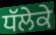
ਧੱਲੇਕੇ